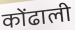
कोंढाली